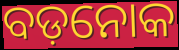
ବଡ଼ନୋକ